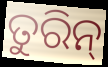
ତୁରିନ୍